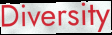
Diversity